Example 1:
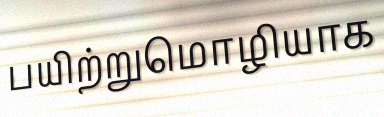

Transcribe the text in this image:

பயிற்றுமொழியாக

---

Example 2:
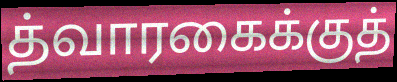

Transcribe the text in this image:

த்வாரகைக்குத்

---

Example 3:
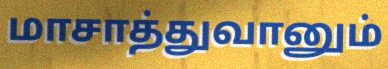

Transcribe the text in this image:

மாசாத்துவானும்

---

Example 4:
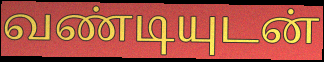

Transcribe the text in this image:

வண்டியுடன்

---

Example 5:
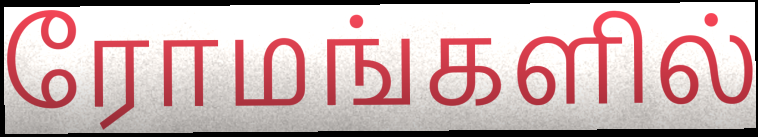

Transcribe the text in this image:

ரோமங்களில்